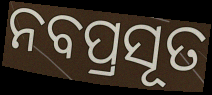
ନବପ୍ରସୂତ